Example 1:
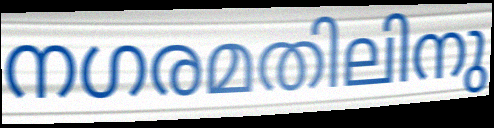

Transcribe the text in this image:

നഗരമതിലിനു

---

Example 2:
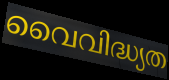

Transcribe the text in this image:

വൈവിദ്ധ്യത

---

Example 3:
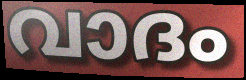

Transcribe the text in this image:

വാദം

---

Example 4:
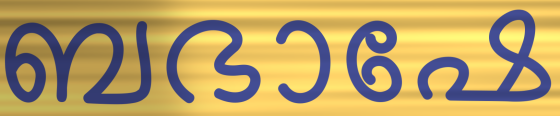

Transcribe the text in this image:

ബഭാഷേ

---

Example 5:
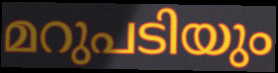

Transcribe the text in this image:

മറുപടിയും